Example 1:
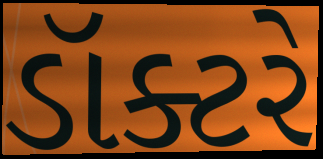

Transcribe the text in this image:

ડૉક્ટરે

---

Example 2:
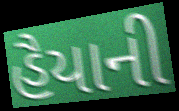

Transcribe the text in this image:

હૈયાની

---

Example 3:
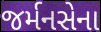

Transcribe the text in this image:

જર્મનસેના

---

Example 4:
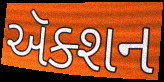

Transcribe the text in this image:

ઍક્શન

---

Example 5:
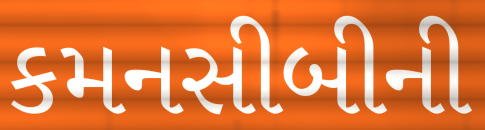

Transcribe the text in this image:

કમનસીબીની